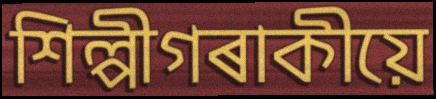
শিল্পীগৰাকীয়ে